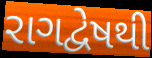
રાગદ્વેષથી